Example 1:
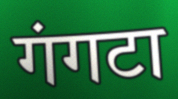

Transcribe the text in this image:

गंगटा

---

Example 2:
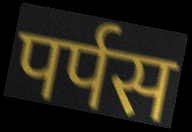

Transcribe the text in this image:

पर्पस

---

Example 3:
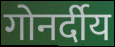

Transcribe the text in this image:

गोनर्दीय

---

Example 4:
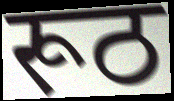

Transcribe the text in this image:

रूठ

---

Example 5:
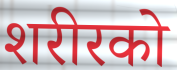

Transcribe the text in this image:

शरीरको